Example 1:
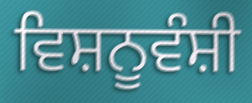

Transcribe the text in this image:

ਵਿਸ਼ਨੂਵੰਸ਼ੀ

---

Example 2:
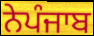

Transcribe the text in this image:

ਨੇਪੰਜਾਬ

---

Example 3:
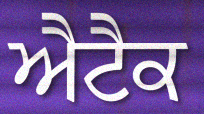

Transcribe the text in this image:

ਐਟੈਕ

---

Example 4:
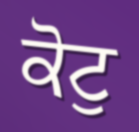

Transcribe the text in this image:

ਕੋਟੁ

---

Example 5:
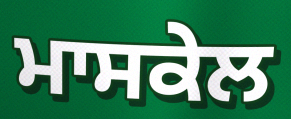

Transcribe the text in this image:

ਮਾਸਕੇਲ